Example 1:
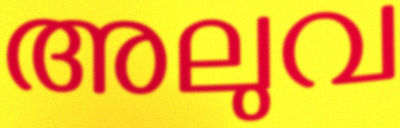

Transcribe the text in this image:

അലുവ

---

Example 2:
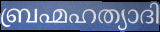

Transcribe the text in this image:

ബ്രഹ്മഹത്യാദി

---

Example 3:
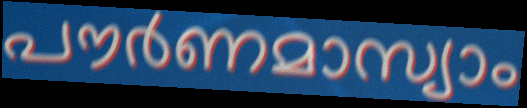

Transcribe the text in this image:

പൗർണമാസ്യാം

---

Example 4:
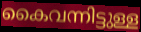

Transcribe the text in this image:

കൈവന്നിട്ടുള്ള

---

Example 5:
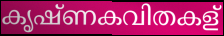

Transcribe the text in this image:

കൃഷ്ണകവിതകള്